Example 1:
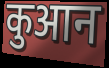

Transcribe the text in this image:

कुआन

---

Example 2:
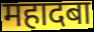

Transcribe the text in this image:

महादबा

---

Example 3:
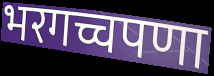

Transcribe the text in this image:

भरगच्चपणा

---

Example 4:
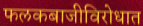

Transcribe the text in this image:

फलकबाजीविरोधात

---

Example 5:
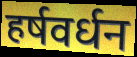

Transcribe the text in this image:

हर्षवर्धन